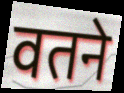
वतने